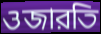
ওজারতি